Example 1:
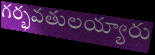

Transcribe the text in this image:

గర్భవతులయ్యారు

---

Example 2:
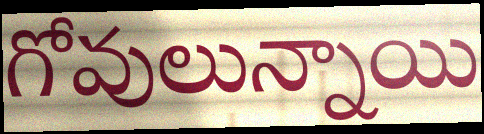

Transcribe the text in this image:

గోవులున్నాయి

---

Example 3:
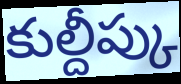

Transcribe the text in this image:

కుల్దీప్కు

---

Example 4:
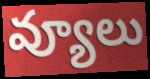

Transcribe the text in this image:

వ్యూలు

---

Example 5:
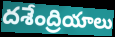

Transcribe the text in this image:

దశేంద్రియాలు